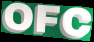
OFC